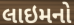
લાઇમનો